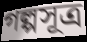
গল্পসূত্র